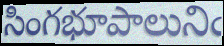
సింగభూపాలునిఁ